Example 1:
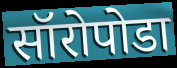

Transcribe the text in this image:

सॉरोपोडा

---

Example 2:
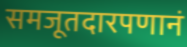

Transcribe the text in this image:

समजूतदारपणानं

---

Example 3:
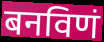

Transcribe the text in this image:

बनविणं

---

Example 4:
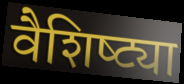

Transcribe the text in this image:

वैशिष्ट्या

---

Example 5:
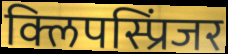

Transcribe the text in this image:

क्लिपस्प्रिंजर